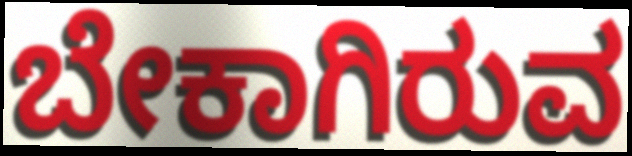
ಬೇಕಾಗಿರುವ